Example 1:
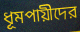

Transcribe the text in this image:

ধূমপায়ীদের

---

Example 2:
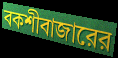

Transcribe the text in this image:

বকশীবাজারের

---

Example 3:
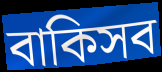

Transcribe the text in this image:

বাকিসব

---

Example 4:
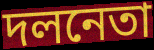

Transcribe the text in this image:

দলনেতা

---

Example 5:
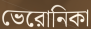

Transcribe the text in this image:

ভেরোনিকা